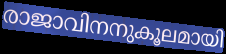
രാജാവിനനുകൂലമായി